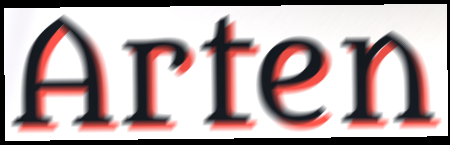
Arten